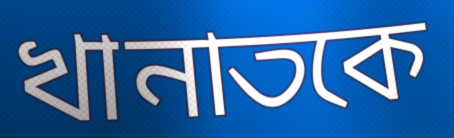
খানাতকে